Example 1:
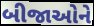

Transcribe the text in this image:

બીજાઓને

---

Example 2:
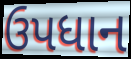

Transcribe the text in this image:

ઉપધાન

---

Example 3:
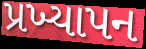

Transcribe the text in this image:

પ્રખ્યાપન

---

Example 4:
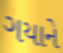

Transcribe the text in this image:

ગયાને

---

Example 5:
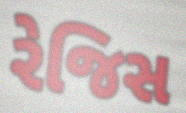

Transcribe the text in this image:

રેજિસ